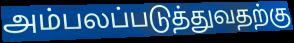
அம்பலப்படுத்துவதற்கு